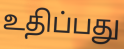
உதிப்பது